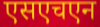
एसएचएन